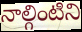
నాల్గింటిని